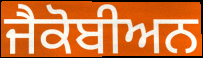
ਜੈਕੋਬੀਅਨ